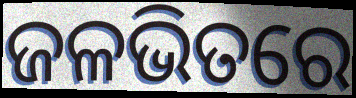
ଜଳଭିତରେ